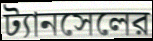
ট্যানসেলের